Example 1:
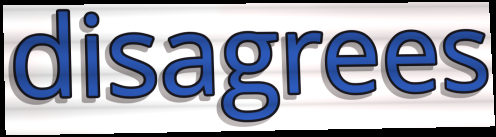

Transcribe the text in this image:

disagrees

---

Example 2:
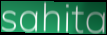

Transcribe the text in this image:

sahita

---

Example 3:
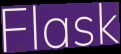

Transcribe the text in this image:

Flask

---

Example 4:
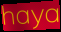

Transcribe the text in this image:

haya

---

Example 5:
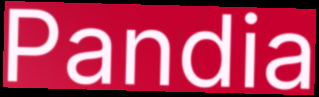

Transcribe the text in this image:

Pandia